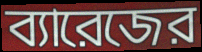
ব্যারেজের